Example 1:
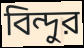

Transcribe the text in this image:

বিন্দুর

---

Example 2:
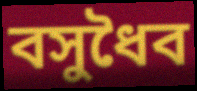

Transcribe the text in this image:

বসুধৈব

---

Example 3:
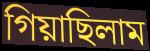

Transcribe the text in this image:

গিয়াছিলাম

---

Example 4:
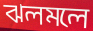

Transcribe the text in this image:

ঝলমলে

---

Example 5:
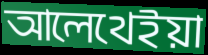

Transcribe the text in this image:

আলেথেইয়া